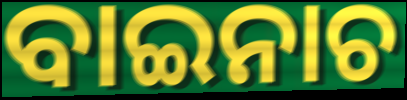
ବାଇନାଚ